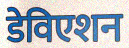
डेविएशन